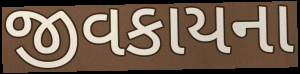
જીવકાયના